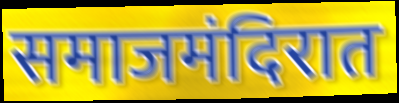
समाजमंदिरात